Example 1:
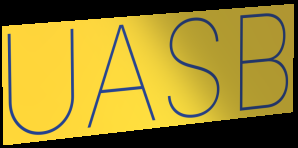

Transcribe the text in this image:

UASB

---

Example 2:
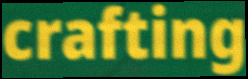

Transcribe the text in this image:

crafting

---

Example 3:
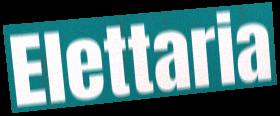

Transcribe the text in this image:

Elettaria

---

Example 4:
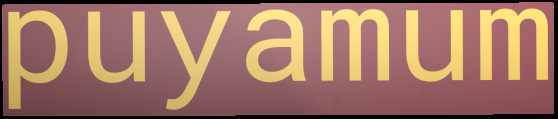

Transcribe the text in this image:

puyamum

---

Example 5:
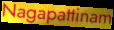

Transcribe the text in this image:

Nagapattinam